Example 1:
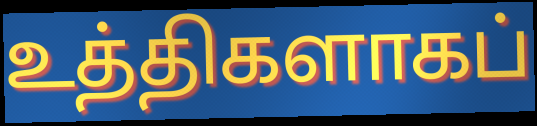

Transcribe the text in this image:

உத்திகளாகப்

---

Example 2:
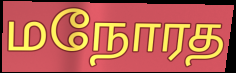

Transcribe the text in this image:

மநோரத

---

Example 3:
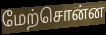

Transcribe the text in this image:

மேற்சொன்ன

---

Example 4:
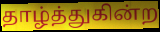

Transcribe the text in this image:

தாழ்த்துகின்ற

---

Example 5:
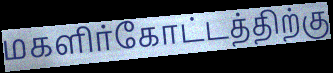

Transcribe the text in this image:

மகளிர்கோட்டத்திற்கு